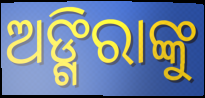
ଅଙ୍ଗିରାଙ୍କୁ